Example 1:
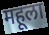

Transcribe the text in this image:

महूला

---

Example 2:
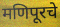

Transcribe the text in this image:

मणिपूरचे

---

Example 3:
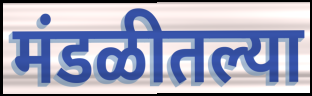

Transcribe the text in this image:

मंडळीतल्या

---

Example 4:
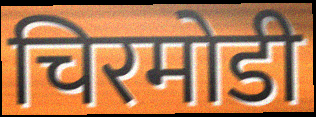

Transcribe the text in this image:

चिरमोडी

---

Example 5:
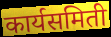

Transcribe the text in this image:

कार्यसमिती